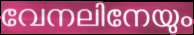
വേനലിനേയും